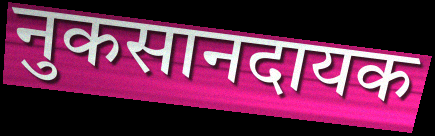
नुकसानदायक